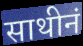
साथीनं